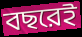
বছরেই